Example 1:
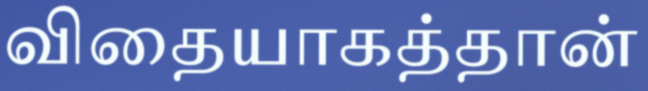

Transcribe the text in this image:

விதையாகத்தான்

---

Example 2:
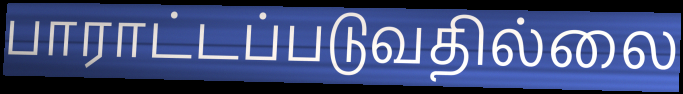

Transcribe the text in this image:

பாராட்டப்படுவதில்லை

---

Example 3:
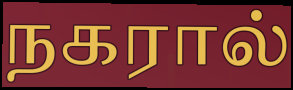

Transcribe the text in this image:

நகரால்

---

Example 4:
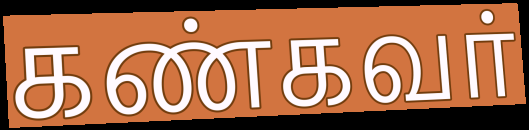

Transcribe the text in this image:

கண்கவர்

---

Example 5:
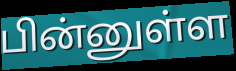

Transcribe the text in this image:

பின்னுள்ள